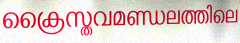
ക്രൈസ്തവമണ്ഡലത്തിലെ